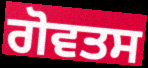
ਗੋਵਤਸ